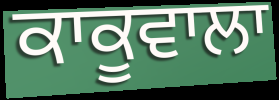
ਕਾਕੂਵਾਲਾ